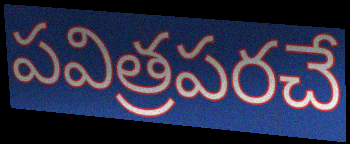
పవిత్రపరచే